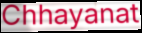
Chhayanat